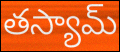
తస్యామ్